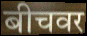
बीचवर